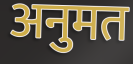
अनुमत